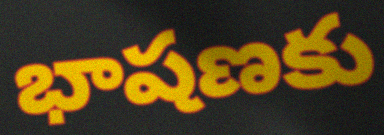
భాషణకు